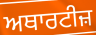
ਅਥਾਰਟੀਜ਼